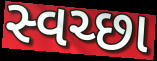
સ્વચ્છા